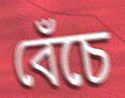
বেঁচে